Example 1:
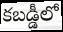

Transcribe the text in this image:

కబడ్డీలో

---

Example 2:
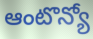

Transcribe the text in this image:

ఆంటొన్యో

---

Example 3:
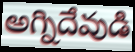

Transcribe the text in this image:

అగ్నిదేవుడి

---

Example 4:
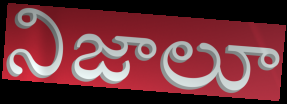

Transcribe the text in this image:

నిజాలూ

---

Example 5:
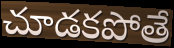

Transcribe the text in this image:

చూడకపోతే